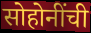
सोहोनींची